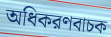
অধিকরণবাচক